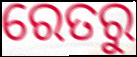
ରେତରୁ